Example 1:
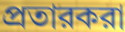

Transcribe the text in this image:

প্রতারকরা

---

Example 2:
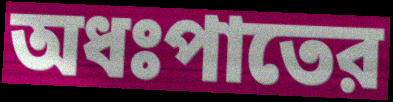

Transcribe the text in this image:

অধঃপাতের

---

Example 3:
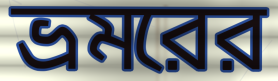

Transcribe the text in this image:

ভ্রমরের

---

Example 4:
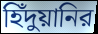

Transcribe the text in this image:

হিঁদুয়ানির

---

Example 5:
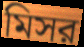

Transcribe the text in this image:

মিসর